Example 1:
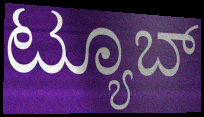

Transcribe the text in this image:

ಟ್ಯೂಬ್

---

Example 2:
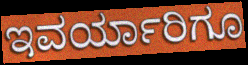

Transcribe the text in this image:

ಇವರ್ಯಾರಿಗೂ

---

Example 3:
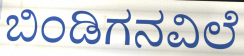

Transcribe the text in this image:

ಬಿಂಡಿಗನವಿಲೆ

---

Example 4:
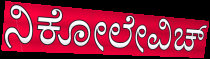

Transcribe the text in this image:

ನಿಕೋಲೇವಿಚ್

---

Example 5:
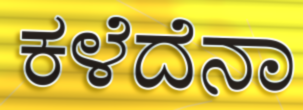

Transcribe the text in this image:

ಕಳೆದೆನಾ